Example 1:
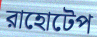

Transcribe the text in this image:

রাহোটেপ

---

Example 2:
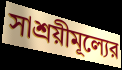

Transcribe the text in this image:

সাশ্রয়ীমূল্যের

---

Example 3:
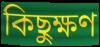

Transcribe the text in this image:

কিছুক্ষণ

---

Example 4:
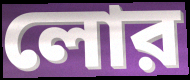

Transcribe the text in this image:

লোর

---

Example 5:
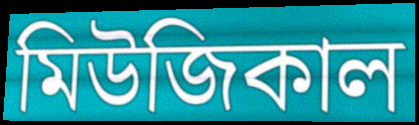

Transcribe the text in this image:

মিউজিকাল